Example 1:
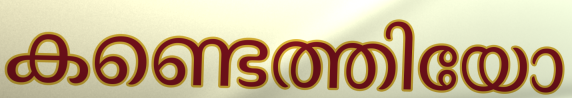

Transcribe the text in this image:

കണ്ടെത്തിയോ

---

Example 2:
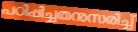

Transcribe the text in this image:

പഠിപ്പിച്ചതനുസരിച്ച്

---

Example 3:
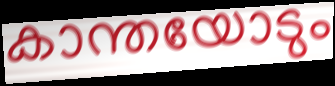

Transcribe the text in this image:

കാന്തയോടും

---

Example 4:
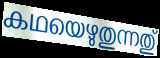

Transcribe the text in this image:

കഥയെഴുതുന്നതു്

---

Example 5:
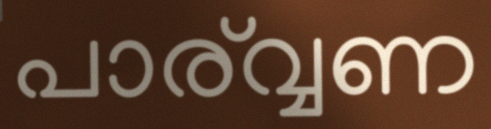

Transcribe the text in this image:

പാര്വ്വണ